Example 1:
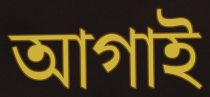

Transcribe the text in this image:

আগাই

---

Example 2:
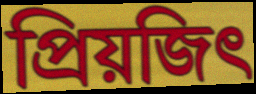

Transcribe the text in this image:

প্রিয়জিৎ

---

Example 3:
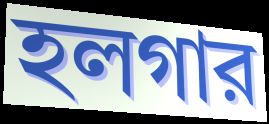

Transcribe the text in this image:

হলগার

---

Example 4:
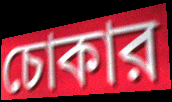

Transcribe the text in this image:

চোকার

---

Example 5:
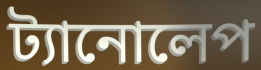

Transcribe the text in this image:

ট্যানোলেপ